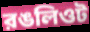
রঙলিওট